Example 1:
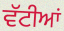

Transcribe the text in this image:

ਵੱਟੀਆਂ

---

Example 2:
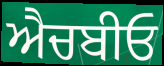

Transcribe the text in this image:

ਐਚਬੀਓ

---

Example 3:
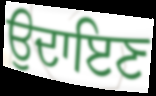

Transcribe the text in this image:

ਉਦਾਇਣ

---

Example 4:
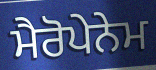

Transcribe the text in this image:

ਮੈਰੋਪੇਨੇਮ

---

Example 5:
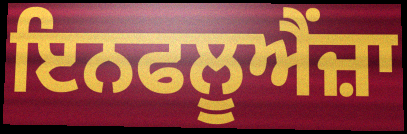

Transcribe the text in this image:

ਇਨਫਲੂਐਂਜ਼ਾ